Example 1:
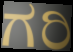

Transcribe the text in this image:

ಗರಿ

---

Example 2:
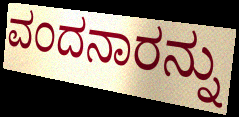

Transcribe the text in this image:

ವಂದನಾರನ್ನು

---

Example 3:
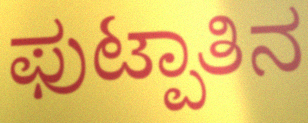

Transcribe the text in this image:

ಫುಟ್ಪಾತಿನ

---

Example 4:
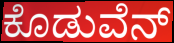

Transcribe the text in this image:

ಕೊಡುವೆನ್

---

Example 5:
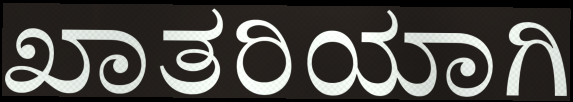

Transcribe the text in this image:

ಖಾತರಿಯಾಗಿ